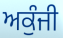
ਅਕੁੰਜੀ